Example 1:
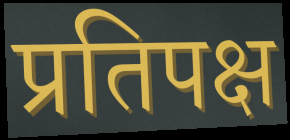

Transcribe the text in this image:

प्रतिपक्ष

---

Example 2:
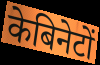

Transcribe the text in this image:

केबिनेटों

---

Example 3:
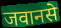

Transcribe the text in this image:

जवानसे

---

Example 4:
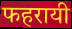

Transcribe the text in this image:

फहरायी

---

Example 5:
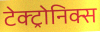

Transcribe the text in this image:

टेक्ट्रोनिक्स